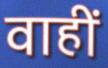
वाहीं